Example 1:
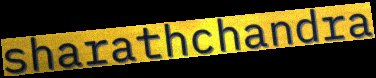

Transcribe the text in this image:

sharathchandra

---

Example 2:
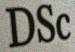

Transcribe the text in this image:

DSc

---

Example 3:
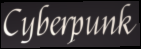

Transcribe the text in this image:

Cyberpunk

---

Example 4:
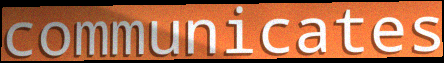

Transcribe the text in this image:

communicates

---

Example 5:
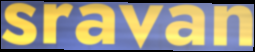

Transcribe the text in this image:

sravan